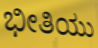
ಭೀತಿಯು